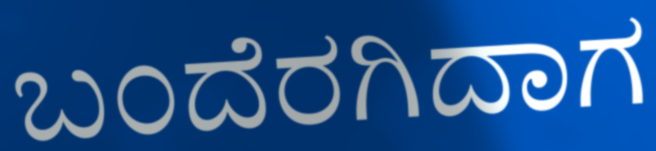
ಬಂದೆರಗಿದಾಗ